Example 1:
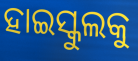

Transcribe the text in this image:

ହାଇସ୍କୁଲକୁ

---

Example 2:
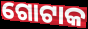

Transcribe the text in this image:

ଗୋଟାକ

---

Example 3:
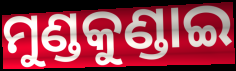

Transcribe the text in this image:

ମୁଣ୍ଡକୁଣ୍ଡାଇ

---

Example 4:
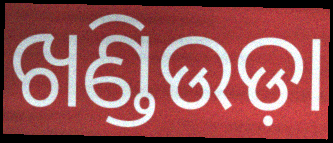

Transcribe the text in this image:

ଖଣ୍ଡିଉଡ଼ା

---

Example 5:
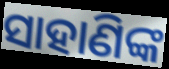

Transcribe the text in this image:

ସାହାଣିଙ୍କ